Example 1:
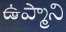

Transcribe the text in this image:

ఉప్మాని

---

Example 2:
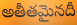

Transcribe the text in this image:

అతీతమైనదీ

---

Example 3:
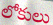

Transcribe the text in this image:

లోకులు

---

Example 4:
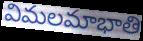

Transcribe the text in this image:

విమలమాభాతి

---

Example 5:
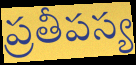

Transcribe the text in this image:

ప్రతీపస్య